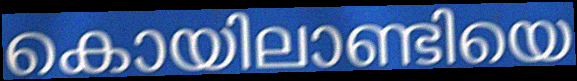
കൊയിലാണ്ടിയെ